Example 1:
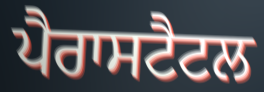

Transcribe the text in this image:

ਪੈਰਾਸਟੈਟਲ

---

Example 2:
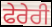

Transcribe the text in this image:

ਫੇਰੇਰੀ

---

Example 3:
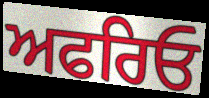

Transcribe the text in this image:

ਅਫਰਿਓ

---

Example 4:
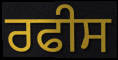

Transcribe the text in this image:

ਰਫੀਸ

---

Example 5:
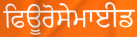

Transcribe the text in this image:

ਫਿਊਰੋਸੇਮਾਈਡ